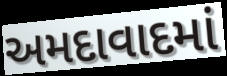
અમદાવાદમાં